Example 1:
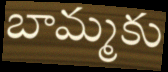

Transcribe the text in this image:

బామ్మకు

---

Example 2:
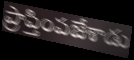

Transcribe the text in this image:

ప్రాప్తింపజేశాడు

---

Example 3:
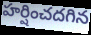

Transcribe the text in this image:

హర్షించదగిన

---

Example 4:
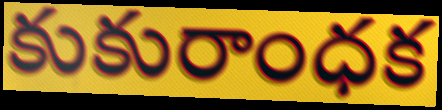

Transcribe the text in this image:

కుకురాంధక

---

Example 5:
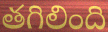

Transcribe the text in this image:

తగిలింది